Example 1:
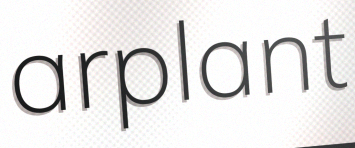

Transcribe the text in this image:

arplant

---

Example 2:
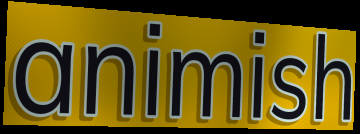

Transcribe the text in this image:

animish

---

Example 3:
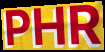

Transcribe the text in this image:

PHR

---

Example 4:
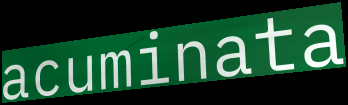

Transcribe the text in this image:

acuminata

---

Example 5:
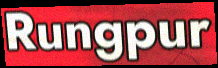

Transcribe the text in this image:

Rungpur